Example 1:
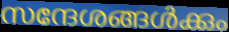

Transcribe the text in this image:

സന്ദേശങ്ങൾക്കും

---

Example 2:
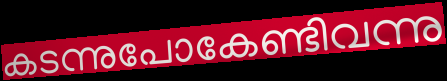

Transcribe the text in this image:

കടന്നുപോകേണ്ടിവന്നു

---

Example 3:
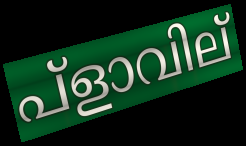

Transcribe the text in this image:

പ്ളാവില്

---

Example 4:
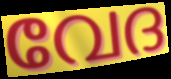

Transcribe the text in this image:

വേദ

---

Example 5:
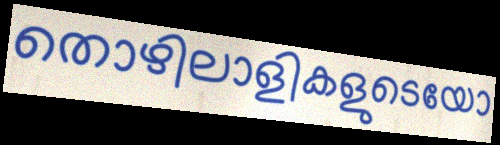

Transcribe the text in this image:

തൊഴിലാളികളുടെയോ